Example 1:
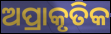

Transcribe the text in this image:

ଅପ୍ରାକୃତିକ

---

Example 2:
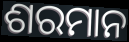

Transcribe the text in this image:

ଶରମାନ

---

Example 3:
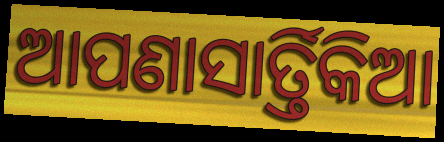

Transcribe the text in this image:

ଆପଣାସାର୍ତ୍ତିକିଆ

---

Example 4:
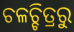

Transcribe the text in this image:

ଚଳଚ୍ଚିତ୍ରରୁ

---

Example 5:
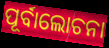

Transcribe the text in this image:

ପୂର୍ବାଲୋଚନା